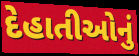
દેહાતીઓનું